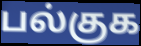
பல்குக